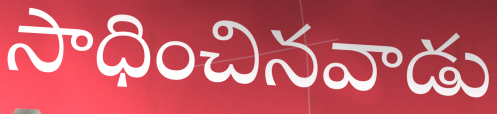
సాధించినవాడు